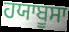
ਹਯਾਬੂਸਾ